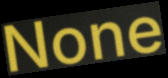
None